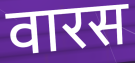
वारस